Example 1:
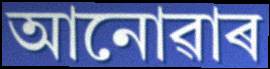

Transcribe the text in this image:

আনোৱাৰ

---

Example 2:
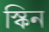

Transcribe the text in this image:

স্কিন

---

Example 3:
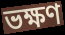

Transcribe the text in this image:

ভক্ষণ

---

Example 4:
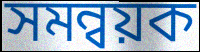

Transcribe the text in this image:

সমন্বয়ক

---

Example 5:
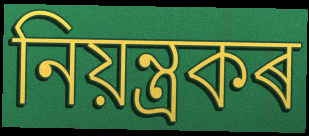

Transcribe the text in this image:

নিয়ন্ত্ৰকৰ